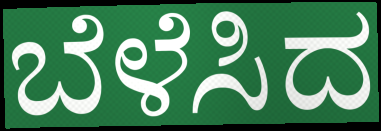
ಬೆಳೆಸಿದ